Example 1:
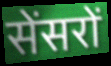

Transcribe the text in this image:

सेंसरों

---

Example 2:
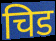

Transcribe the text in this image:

चिड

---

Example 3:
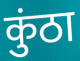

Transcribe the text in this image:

कुंठा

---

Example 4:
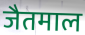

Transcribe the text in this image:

जैतमाल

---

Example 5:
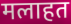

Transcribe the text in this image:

मलाहत